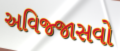
અવિજ્જાસવો